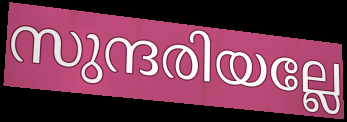
സുന്ദരിയല്ലേ